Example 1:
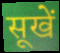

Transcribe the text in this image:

सूखें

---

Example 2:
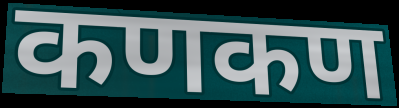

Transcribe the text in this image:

कणकण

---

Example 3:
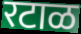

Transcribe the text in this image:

रटाळ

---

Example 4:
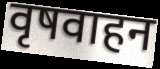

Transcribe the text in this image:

वृषवाहन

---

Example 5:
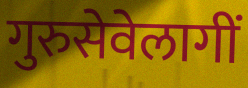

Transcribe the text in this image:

गुरुसेवेलागीं